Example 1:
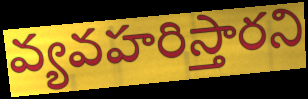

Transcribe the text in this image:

వ్యవహరిస్తారని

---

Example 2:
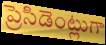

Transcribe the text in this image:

ప్రెసిడెంట్లుగా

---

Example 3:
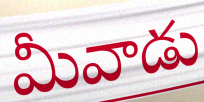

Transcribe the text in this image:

మీవాడు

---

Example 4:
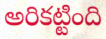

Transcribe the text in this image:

అరికట్టింది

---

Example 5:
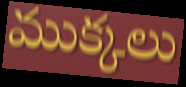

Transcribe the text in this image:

ముక్కలు